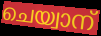
ചെയ്വാന്